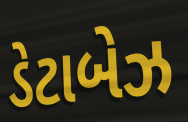
ડેટાબેઝ